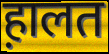
ह़ालत